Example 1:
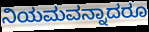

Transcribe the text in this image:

ನಿಯಮವನ್ನಾದರೂ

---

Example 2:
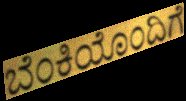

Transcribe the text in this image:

ಬೆಂಕಿಯೊಂದಿಗೆ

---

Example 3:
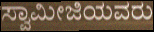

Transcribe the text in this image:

ಸ್ವಾಮೀಜಿಯವರು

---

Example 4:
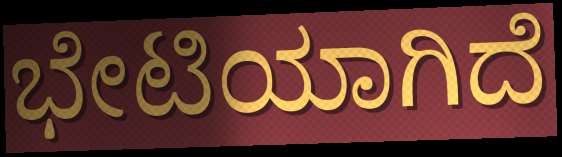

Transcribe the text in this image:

ಭೇಟಿಯಾಗಿದೆ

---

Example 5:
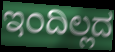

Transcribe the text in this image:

ಇಂದಿಲ್ಲದ